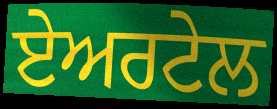
ਏਅਰਟੇਲ